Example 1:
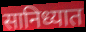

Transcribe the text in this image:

सानिध्यात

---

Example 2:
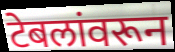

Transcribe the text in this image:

टेबलांवरून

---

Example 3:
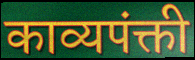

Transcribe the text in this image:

काव्यपंक्ती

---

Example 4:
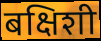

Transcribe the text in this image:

बक्षिशी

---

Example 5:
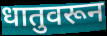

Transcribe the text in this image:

धातुवरून